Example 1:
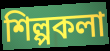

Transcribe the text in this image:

শিল্পকলা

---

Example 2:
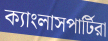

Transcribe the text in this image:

ক্যাংলাসপার্টিরা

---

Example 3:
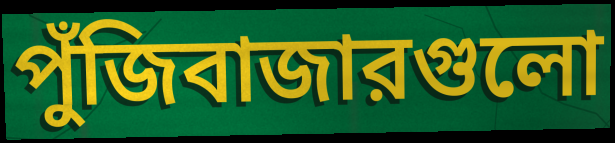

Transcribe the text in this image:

পুঁজিবাজারগুলো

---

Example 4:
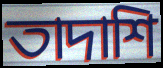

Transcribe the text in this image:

তাদাশি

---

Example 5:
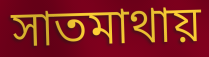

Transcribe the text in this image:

সাতমাথায়